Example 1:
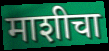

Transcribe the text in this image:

माशीचा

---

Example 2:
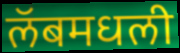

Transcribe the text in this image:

लॅबमधली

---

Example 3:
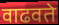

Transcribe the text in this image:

वाढवते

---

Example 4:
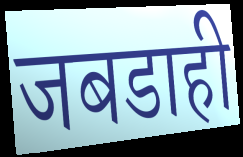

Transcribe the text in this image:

जबडाही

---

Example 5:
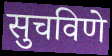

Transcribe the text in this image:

सुचविणे